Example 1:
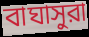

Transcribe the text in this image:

বাঘাসুরা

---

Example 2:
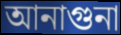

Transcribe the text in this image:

আনাগুনা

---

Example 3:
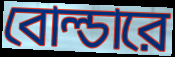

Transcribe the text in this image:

বোল্ডারে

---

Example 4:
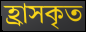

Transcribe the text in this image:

হ্রাসকৃত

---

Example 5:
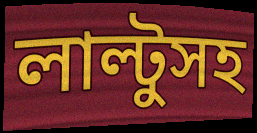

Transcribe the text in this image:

লাল্টুসহ